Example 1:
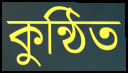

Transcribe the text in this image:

কুন্ঠিত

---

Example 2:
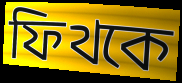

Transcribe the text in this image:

ফিথকে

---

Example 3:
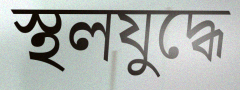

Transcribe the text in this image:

স্থলযুদ্ধে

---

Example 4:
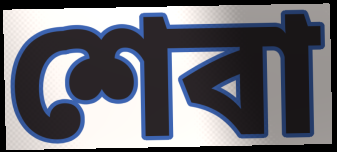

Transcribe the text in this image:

শেবা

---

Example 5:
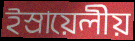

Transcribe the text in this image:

ইস্রায়েলীয়